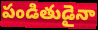
పండితుడైనా